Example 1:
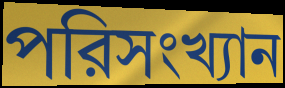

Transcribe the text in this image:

পরিসংখ্য়ান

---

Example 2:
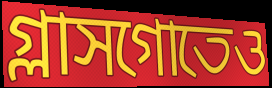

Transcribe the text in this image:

গ্লাসগোতেও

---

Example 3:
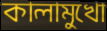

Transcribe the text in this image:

কালামুখো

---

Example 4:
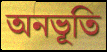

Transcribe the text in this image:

অনভূতি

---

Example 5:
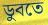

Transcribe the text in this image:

ডুবতে